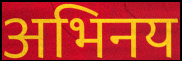
अभिनय